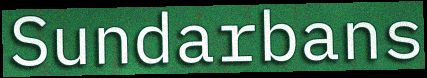
Sundarbans